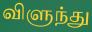
விளுந்து